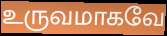
உருவமாகவே